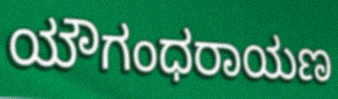
ಯೌಗಂಧರಾಯಣ